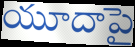
యూదాపై